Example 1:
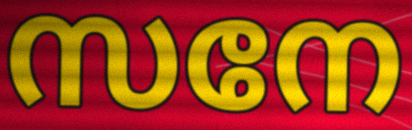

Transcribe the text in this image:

സനേ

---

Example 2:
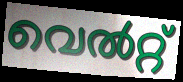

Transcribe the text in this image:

വെൽറ്റ്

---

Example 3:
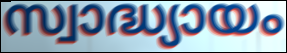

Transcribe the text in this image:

സ്വാദ്ധ്യായം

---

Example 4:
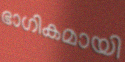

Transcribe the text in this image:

ഭാഗികമായി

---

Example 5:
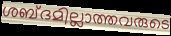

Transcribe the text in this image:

ശബ്ദമില്ലാത്തവരുടെ